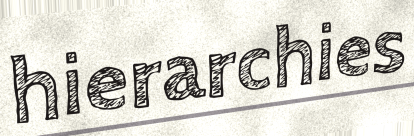
hierarchies